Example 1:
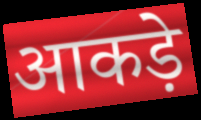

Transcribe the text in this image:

आकड़े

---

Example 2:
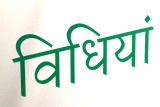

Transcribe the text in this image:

विधियां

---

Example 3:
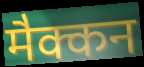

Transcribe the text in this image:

मैक्कन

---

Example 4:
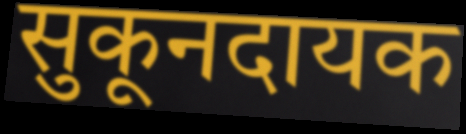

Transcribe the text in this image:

सुकूनदायक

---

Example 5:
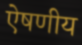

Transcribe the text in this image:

ऐषणीय